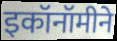
इकॉनॉमीने